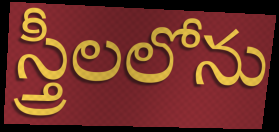
స్త్రీలలోను